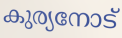
കുര്യനോട്